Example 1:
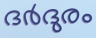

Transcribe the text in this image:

ദർദുരം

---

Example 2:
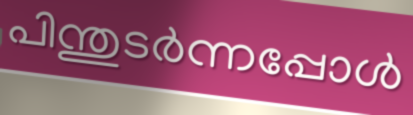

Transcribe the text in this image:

പിന്തുടർന്നപ്പോൾ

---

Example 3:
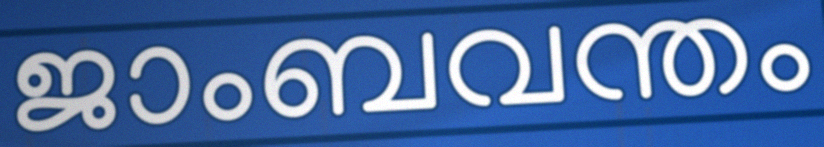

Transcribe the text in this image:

ജാംബവന്തം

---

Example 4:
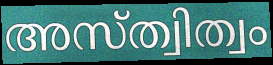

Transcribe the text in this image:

അസ്ത്വിത്വം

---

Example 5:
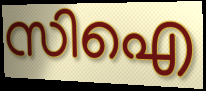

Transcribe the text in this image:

സിഐ